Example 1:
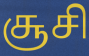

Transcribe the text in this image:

சூசி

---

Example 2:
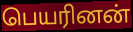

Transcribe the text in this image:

பெயரினன்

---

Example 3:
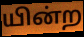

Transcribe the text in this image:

யின்ற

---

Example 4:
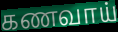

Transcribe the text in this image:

கணவாய்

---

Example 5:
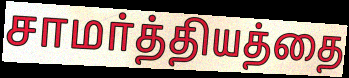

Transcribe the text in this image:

சாமர்த்தியத்தை